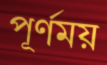
পূর্ণময়